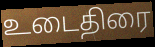
உடைதிரை